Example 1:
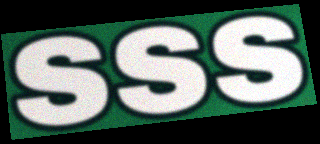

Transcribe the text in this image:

sss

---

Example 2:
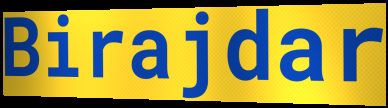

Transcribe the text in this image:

Birajdar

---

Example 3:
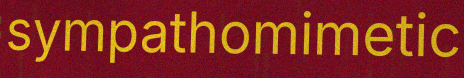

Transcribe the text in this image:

sympathomimetic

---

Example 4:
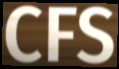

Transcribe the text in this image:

CFS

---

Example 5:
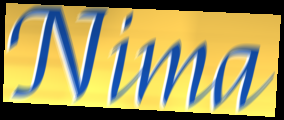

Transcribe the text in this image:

Nima